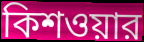
কিশওয়ার